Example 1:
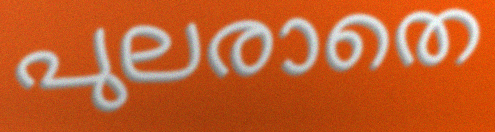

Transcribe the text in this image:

പുലരാതെ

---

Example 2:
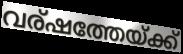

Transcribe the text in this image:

വര്ഷത്തേയ്ക്ക്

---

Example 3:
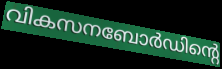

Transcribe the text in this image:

വികസനബോർഡിന്റെ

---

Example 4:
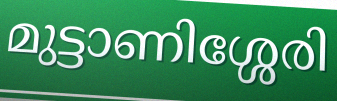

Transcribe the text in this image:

മുട്ടാണിശ്ശേരി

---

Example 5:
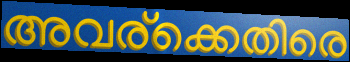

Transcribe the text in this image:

അവര്ക്കെതിരെ